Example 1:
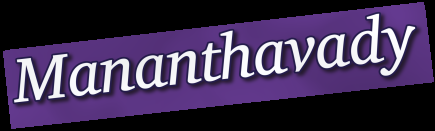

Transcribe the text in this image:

Mananthavady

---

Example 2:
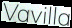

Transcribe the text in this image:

Vavilla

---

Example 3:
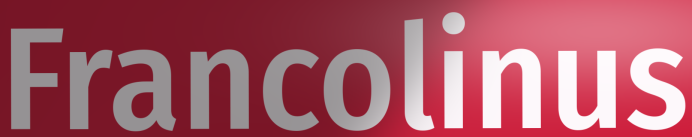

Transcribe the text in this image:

Francolinus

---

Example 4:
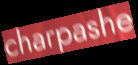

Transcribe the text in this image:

charpashe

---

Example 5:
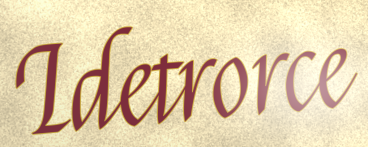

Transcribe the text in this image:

Idetrorce